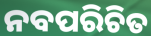
ନବପରିଚିତ